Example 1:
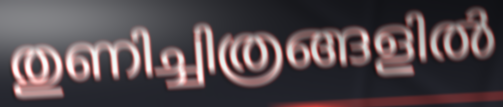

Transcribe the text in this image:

തുണിച്ചിത്രങ്ങളിൽ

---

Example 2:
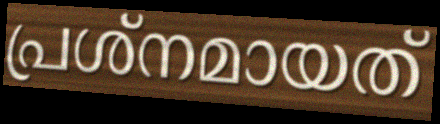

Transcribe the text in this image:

പ്രശ്നമായത്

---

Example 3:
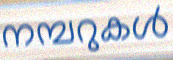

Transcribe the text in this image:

നമ്പറുകൾ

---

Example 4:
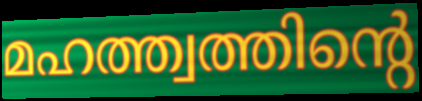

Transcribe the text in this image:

മഹത്ത്വത്തിന്റെ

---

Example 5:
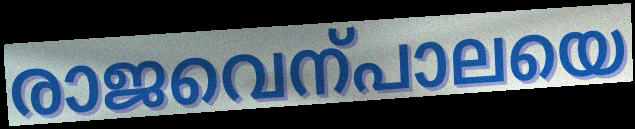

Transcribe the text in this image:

രാജവെന്പാലയെ